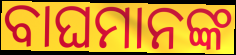
ବାଘମାନଙ୍କ